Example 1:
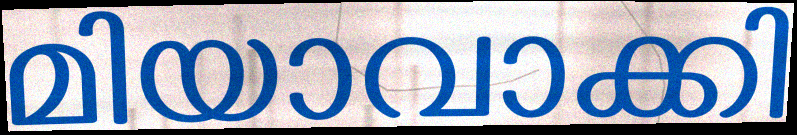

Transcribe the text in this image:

മിയാവാക്കി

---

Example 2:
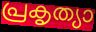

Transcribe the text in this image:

പ്രകൃത്യാ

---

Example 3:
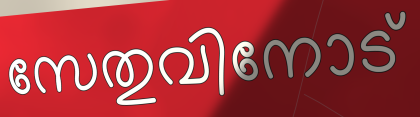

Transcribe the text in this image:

സേതുവിനോട്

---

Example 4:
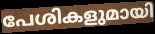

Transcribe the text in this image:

പേശികളുമായി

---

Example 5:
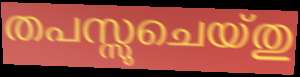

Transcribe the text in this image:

തപസ്സുചെയ്തു